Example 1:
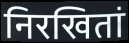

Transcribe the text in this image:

निरखितां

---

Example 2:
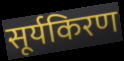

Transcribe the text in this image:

सूर्यकिरण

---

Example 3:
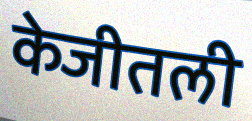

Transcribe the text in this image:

केजीतली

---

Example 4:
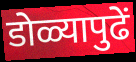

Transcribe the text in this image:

डोळ्यापुढें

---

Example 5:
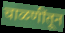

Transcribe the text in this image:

चाळणींतून